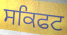
ਸਕਿਫਟ